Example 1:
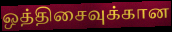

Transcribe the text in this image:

ஒத்திசைவுக்கான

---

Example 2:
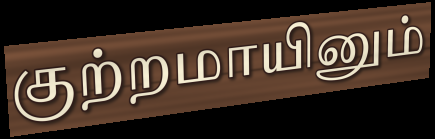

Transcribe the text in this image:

குற்றமாயினும்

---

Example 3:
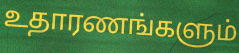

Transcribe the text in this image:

உதாரணங்களும்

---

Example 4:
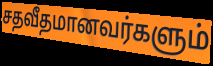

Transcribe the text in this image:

சதவீதமானவர்களும்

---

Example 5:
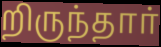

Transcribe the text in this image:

றிருந்தார்